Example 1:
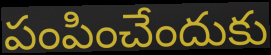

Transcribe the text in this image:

పంపించేందుకు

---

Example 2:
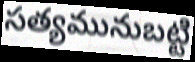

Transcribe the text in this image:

సత్యమునుబట్టి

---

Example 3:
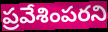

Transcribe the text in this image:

ప్రవేశింపరని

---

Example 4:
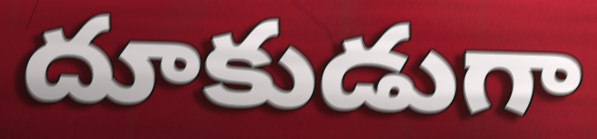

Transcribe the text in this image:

దూకుడుగా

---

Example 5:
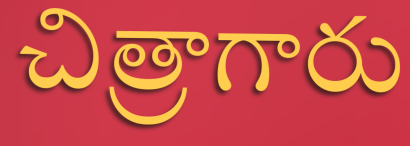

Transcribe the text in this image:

చిత్రాగారు